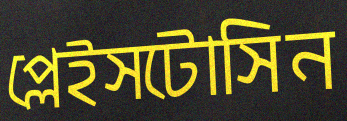
প্লেইসটোসিন